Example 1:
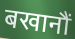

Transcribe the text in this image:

बखानौं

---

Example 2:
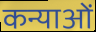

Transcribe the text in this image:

कन्‍याओं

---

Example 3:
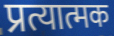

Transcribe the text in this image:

प्रत्यात्मक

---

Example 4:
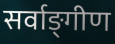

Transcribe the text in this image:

सर्वाङ्गीण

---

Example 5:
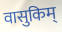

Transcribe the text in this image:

वासुकिम्